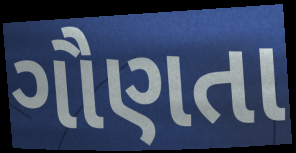
ગૌણતા